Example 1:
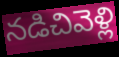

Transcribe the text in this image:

నడిచివెళ్లి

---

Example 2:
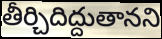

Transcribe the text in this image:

తీర్చిదిద్దుతానని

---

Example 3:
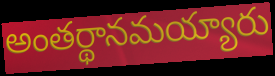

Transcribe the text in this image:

అంతర్థానమయ్యారు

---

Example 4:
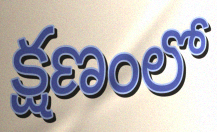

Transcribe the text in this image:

క్షణంలో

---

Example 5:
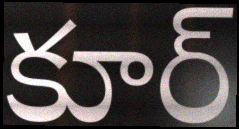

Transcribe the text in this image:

కూర్